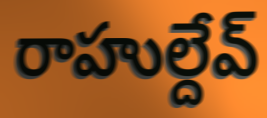
రాహుల్దేవ్